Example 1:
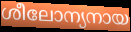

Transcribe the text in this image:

ശീലോന്യനായ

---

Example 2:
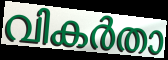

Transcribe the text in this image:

വികർതാ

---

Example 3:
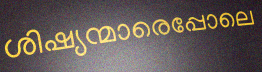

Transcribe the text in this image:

ശിഷ്യന്മാരെപ്പോലെ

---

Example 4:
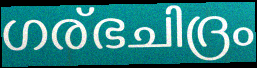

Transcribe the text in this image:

ഗര്ഭചിദ്രം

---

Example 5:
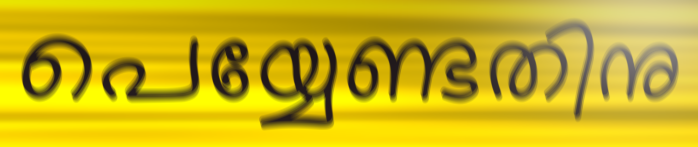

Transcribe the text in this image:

പെയ്യേണ്ടതിനു